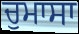
ਚੁਮਾਸਾ